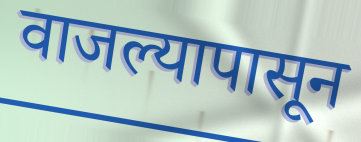
वाजल्यापासून